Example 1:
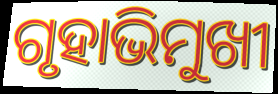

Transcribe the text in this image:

ଗୃହାଭିମୁଖୀ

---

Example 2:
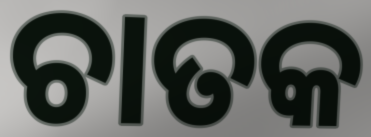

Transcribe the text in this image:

ଚାତକ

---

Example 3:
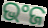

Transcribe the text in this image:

ଭଂଜ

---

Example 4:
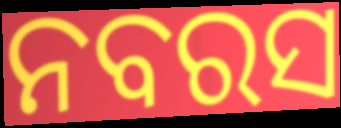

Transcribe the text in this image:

ନବରସ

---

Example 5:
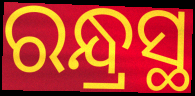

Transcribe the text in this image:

ରନ୍ଧ୍ରସ୍ଥ